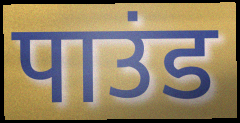
पाउंड